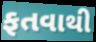
ફતવાથી